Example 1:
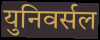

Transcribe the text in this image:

युनिवर्सल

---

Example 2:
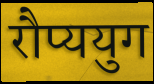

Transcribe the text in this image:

रौप्ययुग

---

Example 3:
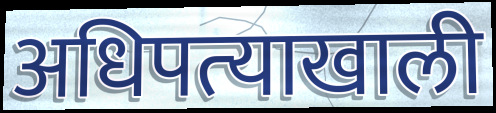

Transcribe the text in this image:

अधिपत्‍याखाली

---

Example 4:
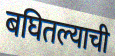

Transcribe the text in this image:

बघितल्याची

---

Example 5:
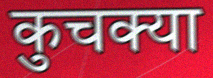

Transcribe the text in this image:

कुचक्या